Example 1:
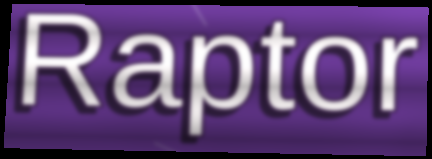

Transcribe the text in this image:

Raptor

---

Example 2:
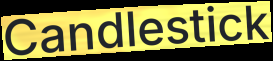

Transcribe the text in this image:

Candlestick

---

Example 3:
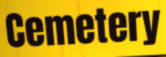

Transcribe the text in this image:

Cemetery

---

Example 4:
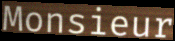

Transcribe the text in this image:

Monsieur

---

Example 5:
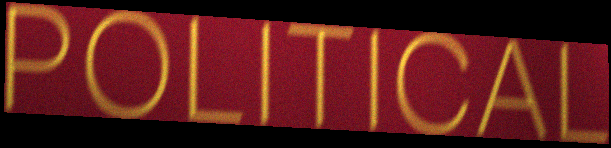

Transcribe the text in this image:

POLITICAL